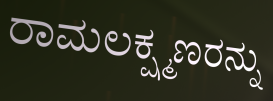
ರಾಮಲಕ್ಷ್ಮಣರನ್ನು